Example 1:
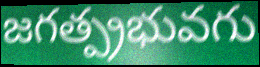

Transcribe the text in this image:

జగత్ప్రభువగు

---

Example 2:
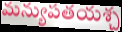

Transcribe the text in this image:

మన్యుపతయశ్చ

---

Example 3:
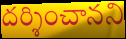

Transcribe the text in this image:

దర్శించానని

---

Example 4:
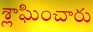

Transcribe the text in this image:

శ్లాఘించారు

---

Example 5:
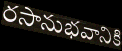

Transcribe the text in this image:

రసానుభవానికి